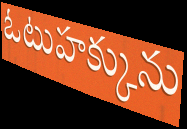
ఓటుహక్కును